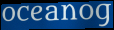
oceanog